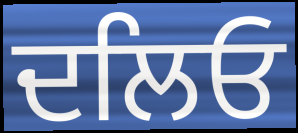
ਦਲਿਓ